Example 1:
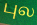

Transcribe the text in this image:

புல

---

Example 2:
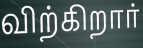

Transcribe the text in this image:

விற்கிறார்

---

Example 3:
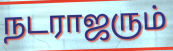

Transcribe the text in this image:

நடராஜரும்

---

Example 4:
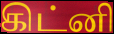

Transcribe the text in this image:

கிட்னி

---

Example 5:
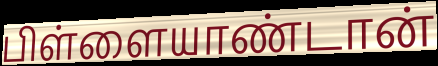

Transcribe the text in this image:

பிள்ளையாண்டான்